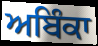
ਅਬਿੰਕਾ